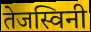
तेजस्विनी